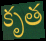
కృత